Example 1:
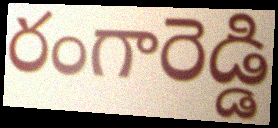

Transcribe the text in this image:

రంగారెడ్డి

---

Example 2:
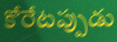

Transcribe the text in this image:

కోరేటప్పుడు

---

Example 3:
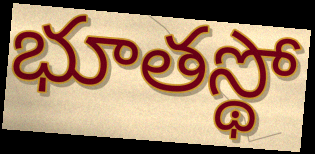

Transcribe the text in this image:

భూతస్థో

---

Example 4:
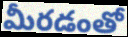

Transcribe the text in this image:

మీరడంతో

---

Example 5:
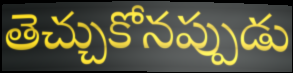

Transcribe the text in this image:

తెచ్చుకోనప్పుడు